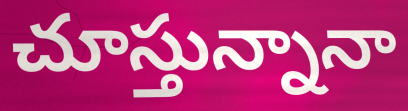
చూస్తున్నానా